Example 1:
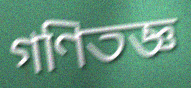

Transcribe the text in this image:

গণিতজ্ঞ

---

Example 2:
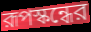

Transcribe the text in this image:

রূপস্কন্ধের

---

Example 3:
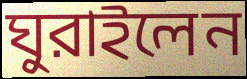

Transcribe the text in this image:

ঘুরাইলেন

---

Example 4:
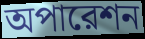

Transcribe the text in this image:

অপারেশন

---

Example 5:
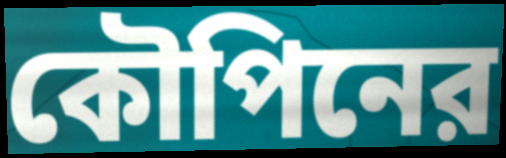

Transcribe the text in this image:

কৌপিনের